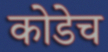
कोडेच